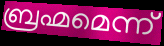
ബ്രഹ്മമെന്ന്